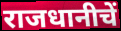
राजधानीचें